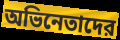
অভিনেতাদের